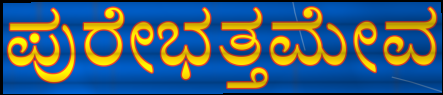
ಪುರೇಭತ್ತಮೇವ